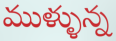
ముళ్ళున్న